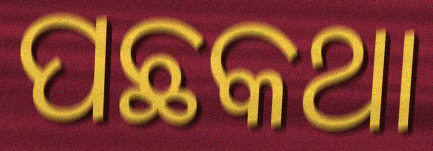
ପଛକଥା